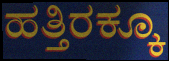
ಹತ್ತಿರಕ್ಕೂ